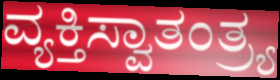
ವ್ಯಕ್ತಿಸ್ವಾತಂತ್ರ್ಯ